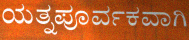
ಯತ್ನಪೂರ್ವಕವಾಗಿ